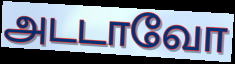
அடடாவோ